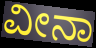
ವೀನಾ